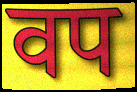
वप